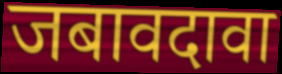
जबावदावा